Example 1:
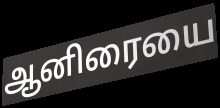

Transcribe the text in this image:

ஆனிரையை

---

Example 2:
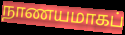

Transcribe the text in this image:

நாணயமாகப்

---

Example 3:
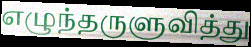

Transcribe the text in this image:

எழுந்தருளுவித்து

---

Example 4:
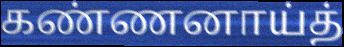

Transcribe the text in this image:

கண்ணனாய்த்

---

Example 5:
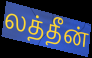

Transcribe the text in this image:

லத்தீன்